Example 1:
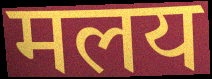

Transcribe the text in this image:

मलय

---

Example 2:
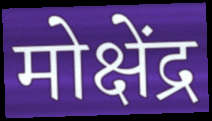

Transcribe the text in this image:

मोक्षेंद्र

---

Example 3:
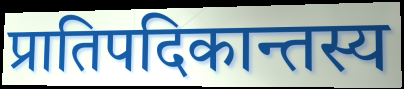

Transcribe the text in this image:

प्रातिपदिकान्तस्य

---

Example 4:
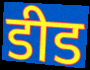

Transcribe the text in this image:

डीड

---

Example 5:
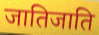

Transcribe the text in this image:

जातिजाति